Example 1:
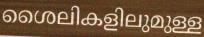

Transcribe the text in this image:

ശൈലികളിലുമുള്ള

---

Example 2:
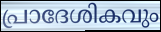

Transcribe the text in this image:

പ്രാദേശികവും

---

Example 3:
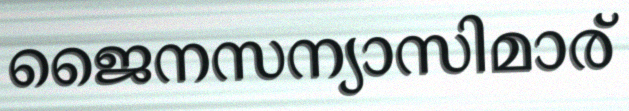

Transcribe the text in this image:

ജൈനസന്യാസിമാര്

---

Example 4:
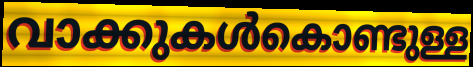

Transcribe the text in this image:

വാക്കുകൾകൊണ്ടുള്ള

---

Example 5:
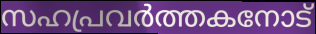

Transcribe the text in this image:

സഹപ്രവർത്തകനോട്